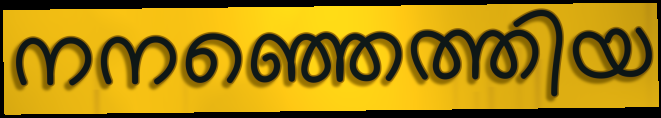
നനഞ്ഞെത്തിയ